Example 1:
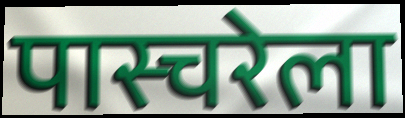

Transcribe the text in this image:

पास्चरेला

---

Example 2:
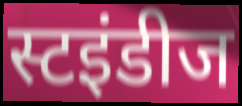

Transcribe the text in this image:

स्टइंडीज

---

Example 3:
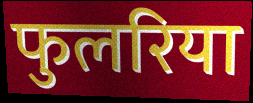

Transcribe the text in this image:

फुलरिया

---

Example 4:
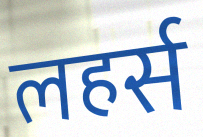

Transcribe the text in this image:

लहर्स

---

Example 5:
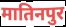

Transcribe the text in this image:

मातिनपुर